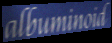
albuminoid